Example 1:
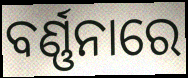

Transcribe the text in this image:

ବର୍ଣ୍ଣନାରେ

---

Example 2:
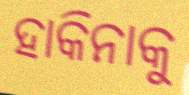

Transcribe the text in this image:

ହାକିନାକୁ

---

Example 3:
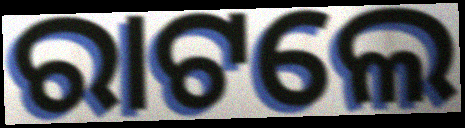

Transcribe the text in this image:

ରାଟଲେ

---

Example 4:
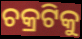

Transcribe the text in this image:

ଚକ୍ରଟିକୁ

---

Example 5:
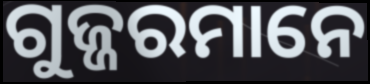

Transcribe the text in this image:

ଗୁଜ୍ଜରମାନେ